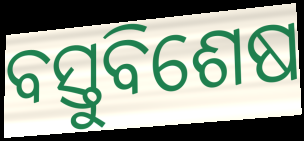
ବସ୍ତୁବିଶେଷ